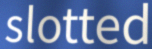
slotted